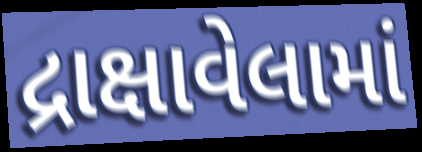
દ્રાક્ષાવેલામાં